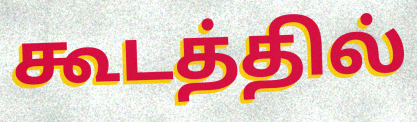
கூடத்தில்